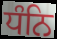
ਧੰਨਿ